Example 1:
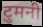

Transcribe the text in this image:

टुमनी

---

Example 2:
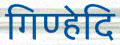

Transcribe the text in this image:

गिण्हेदि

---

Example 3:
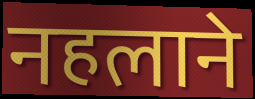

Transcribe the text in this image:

नहलाने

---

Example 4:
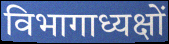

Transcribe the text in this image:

विभागाध्‍यक्षों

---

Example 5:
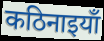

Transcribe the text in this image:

कठिनाइयाँ